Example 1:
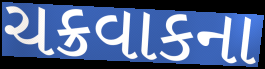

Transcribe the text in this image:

ચક્રવાકના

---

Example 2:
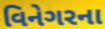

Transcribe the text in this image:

વિનેગરના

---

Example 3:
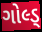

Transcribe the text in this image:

ગોલ્ડ્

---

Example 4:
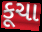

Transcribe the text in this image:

કૂચા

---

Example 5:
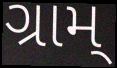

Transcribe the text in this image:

ગ્રામ્